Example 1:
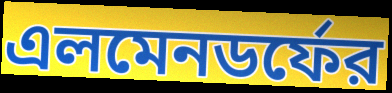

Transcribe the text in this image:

এলমেনডর্ফের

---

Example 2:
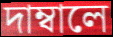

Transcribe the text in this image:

দাম্বালে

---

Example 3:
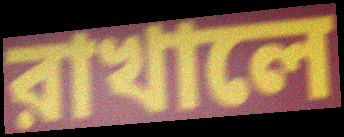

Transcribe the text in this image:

রাখালে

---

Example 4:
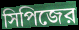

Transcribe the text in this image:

সিপিজের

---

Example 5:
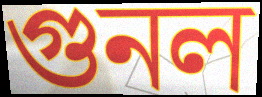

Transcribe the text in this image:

গুনল